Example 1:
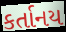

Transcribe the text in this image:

કર્તાનય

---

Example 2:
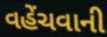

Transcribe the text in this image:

વહેંચવાની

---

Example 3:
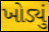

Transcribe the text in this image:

ખોડ્યું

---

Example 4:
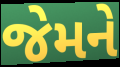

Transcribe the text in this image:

જેમને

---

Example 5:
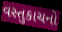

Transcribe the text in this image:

વસ્તુકાચનો